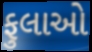
ફુલાઓ